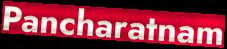
Pancharatnam